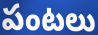
పంటలు